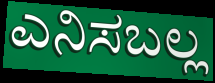
ಎನಿಸಬಲ್ಲ